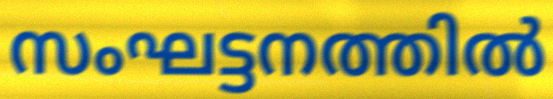
സംഘട്ടനത്തിൽ